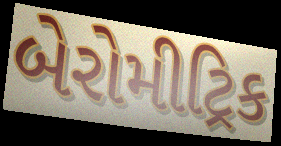
બેરોમીટ્રિક